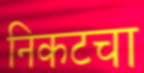
निकटचा